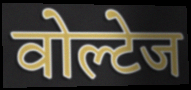
वोल्टेज